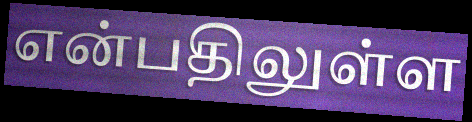
என்பதிலுள்ள